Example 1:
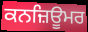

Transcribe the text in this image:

ਕਨਜ਼ਿਊਮਰ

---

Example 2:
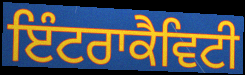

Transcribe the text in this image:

ਇੰਟਰਾਕੈਵਿਟੀ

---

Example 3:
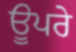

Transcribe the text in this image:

ਊਪਰੇ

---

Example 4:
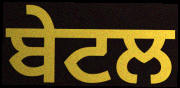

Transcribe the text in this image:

ਬੇਟਲ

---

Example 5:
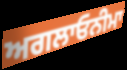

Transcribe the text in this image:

ਅਗਲਾਓਨੀਮਾ